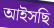
আইসছি